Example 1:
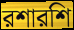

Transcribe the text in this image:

রশারশি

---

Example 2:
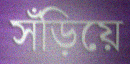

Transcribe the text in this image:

সঁড়িয়ে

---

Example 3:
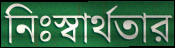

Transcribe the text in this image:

নিঃস্বার্থতার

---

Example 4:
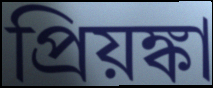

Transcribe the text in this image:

প্রিয়ঙ্কা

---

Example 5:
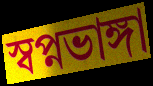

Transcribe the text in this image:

স্বপ্নভাঙ্গা